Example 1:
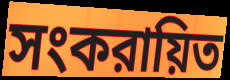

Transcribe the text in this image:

সংকরায়িত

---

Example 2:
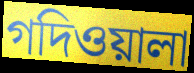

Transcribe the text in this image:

গদিওয়ালা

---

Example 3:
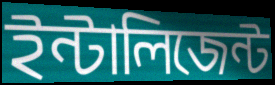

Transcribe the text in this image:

ইন্টালিজেন্ট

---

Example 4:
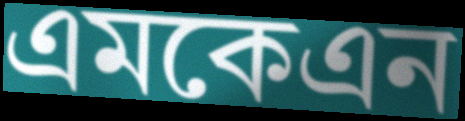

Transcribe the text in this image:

এমকেএন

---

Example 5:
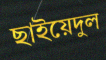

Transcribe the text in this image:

ছাইয়েদুল